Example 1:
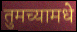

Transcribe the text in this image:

तुमच्यामधे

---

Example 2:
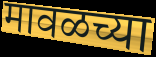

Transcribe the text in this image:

मावळच्या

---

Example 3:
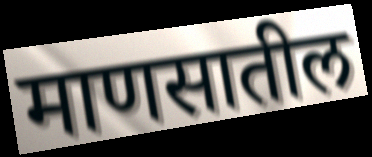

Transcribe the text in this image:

माणसातील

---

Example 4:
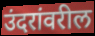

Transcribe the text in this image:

उंदरांवरील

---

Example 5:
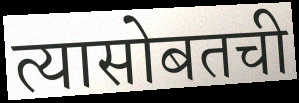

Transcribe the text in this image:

त्यासोबतची